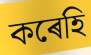
কৰেহি